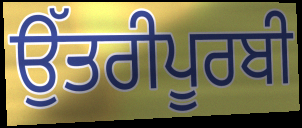
ਉੱਤਰੀਪੂਰਬੀ